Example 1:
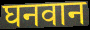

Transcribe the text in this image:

घनवान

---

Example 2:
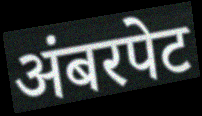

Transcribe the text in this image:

अंबरपेट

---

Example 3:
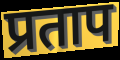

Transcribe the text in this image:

प्रताप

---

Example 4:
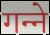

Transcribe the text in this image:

गन्‍ने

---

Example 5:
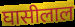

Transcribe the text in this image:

घासीलाल